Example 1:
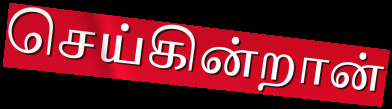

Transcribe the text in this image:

செய்கின்றான்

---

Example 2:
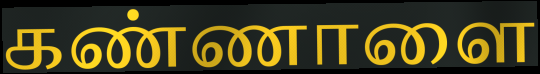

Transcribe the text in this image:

கண்ணாளை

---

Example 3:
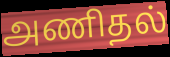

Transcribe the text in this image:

அணிதல்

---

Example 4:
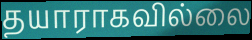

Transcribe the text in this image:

தயாராகவில்லை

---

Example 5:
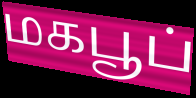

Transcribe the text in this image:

மகபூப்